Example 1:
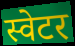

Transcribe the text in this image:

स्वेटर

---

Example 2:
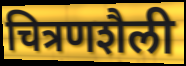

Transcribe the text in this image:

चित्रणशैली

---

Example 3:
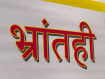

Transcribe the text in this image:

भ्रांतही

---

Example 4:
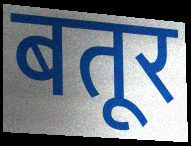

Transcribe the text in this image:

बतूर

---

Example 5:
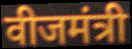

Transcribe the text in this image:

वीजमंत्री